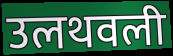
उलथवली